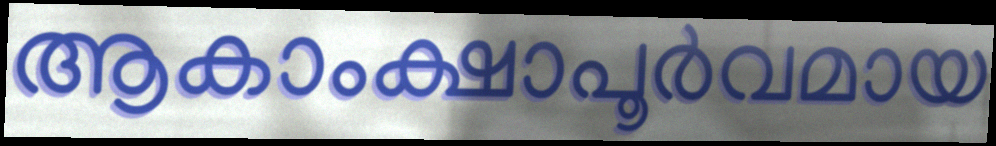
ആകാംക്ഷാപൂർവമായ